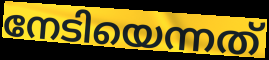
നേടിയെന്നത്